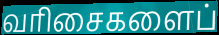
வரிசைகளைப்